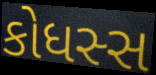
કોધસ્સ